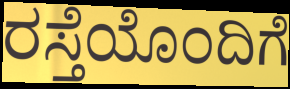
ರಸ್ತೆಯೊಂದಿಗೆ